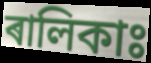
ৰালিকাঃ